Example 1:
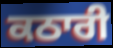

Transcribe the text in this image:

ਕਠਾਰੀ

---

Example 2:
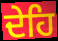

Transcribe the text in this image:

ਦੇਹਿ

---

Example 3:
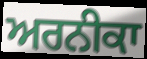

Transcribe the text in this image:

ਅਰਨੀਕਾ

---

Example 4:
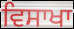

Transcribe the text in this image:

ਵਿਸਾਖਾ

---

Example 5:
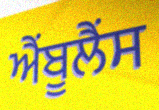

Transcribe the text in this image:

ਐਂਬੂਲੈਂਸ